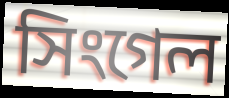
সিংগেল